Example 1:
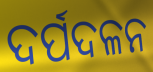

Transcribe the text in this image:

ଦର୍ପଦଳନ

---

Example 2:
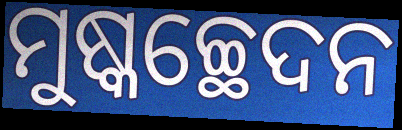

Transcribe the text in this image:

ମୁଷ୍କଚ୍ଛେଦନ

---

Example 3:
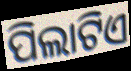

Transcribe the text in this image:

ପିଲାଟିଏ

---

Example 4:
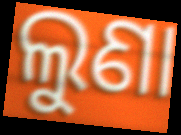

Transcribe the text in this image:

ଲୁଣା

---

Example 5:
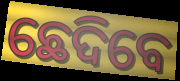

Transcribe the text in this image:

ଛେଦିବେ